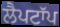
ਲੈਪਟਾੱਪ